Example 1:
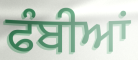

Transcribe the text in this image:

ਫੰਬੀਆਂ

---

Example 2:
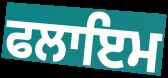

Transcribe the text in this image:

ਫਲਾਇਮ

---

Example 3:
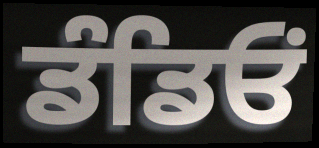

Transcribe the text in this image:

ਡੰਡਿਓਂ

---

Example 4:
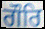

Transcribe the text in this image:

ਗੌਰਿ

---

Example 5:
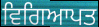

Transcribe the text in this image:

ਵਿਗਿਆਪਤ